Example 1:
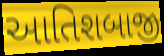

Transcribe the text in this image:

આતિશબાજી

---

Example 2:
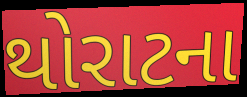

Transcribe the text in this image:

થોરાટના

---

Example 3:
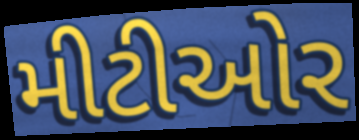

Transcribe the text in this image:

મીટીઓર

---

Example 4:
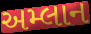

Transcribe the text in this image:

અમ્લાન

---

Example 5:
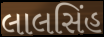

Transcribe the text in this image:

લાલસિંહ